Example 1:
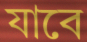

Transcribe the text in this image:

যাবে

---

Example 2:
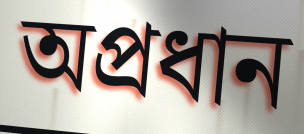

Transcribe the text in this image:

অপ্ৰধান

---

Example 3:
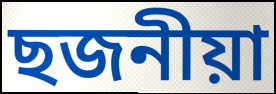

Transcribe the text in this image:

ছজনীয়া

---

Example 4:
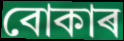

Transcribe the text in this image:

বোকাৰ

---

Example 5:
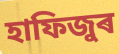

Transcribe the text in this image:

হাফিজুৰ